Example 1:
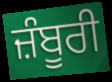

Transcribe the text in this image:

ਜ਼ੰਬੂਰੀ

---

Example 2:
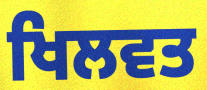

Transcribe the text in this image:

ਖਿਲਵਤ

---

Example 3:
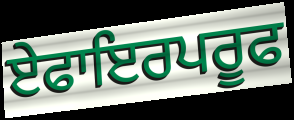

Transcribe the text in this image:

ਏਫਾਇਰਪਰੂਫ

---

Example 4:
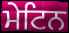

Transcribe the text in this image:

ਮੇਟਿਨ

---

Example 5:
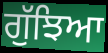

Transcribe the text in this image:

ਗੁੱਝਿਆ